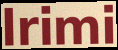
Irimi